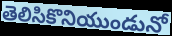
తెలిసికొనియుండునో